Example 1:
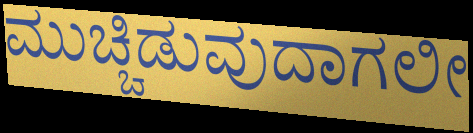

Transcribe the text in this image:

ಮುಚ್ಚಿಡುವುದಾಗಲೀ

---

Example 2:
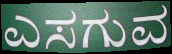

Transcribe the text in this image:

ಎಸಗುವ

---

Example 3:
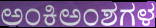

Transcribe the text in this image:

ಅಂಕಿಅಂಶಗಳ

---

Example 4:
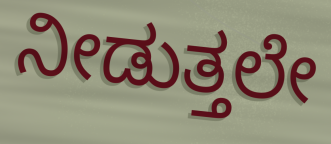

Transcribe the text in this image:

ನೀಡುತ್ತಲೇ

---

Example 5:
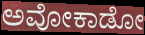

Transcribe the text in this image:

ಅವೋಕಾಡೋ